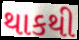
થાકથી